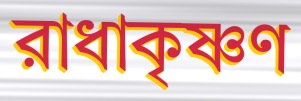
রাধাকৃষ্ণণ